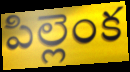
పిల్లెంక